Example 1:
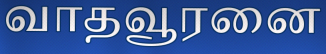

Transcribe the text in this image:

வாதவூரனை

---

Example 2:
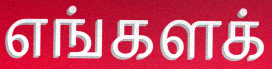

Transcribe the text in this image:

எங்களக்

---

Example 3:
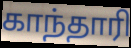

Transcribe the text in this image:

காந்தாரி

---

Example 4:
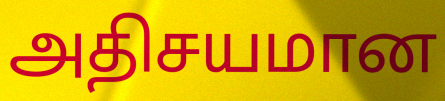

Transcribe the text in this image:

அதிசயமான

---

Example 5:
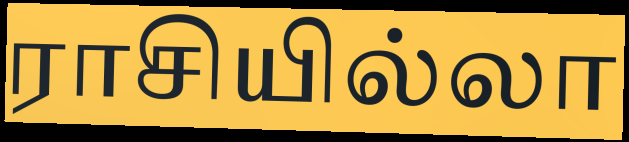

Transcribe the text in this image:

ராசியில்லா